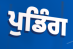
ਪੁਡਿੰਗ